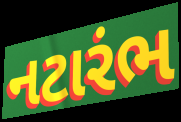
નટારંભ